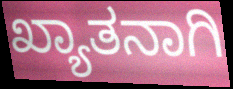
ಖ್ಯಾತನಾಗಿ